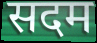
सदम